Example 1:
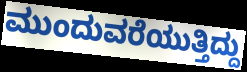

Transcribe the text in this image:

ಮುಂದುವರೆಯುತ್ತಿದ್ದು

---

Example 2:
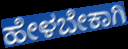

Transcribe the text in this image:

ಹೇಳಬೇಕಾಗಿ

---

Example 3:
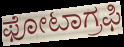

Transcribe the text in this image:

ಫೋಟಾಗ್ರಫಿ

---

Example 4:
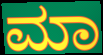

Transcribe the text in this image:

ಮಾ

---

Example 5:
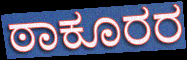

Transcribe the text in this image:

ಠಾಕೂರರ